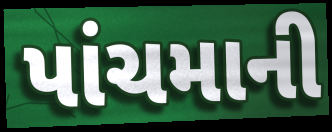
પાંચમાની